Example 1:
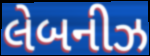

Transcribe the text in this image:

લેબનીઝ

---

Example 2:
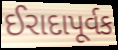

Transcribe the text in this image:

ઈરાદાપૂર્વક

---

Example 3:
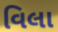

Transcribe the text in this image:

વિલા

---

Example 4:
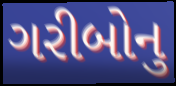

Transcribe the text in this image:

ગરીબોનુ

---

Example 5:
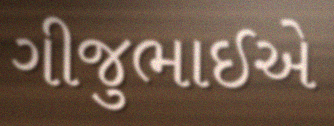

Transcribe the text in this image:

ગીજુભાઈએ